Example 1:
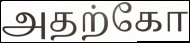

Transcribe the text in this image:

அதற்கோ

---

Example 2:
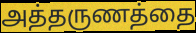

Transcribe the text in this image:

அத்தருணத்தை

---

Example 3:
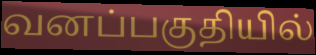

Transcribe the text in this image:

வனப்பகுதியில்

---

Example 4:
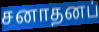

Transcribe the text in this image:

சனாதனப்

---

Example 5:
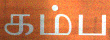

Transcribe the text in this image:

கம்ப